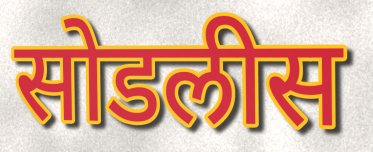
सोडलीस